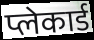
प्‍लेकार्ड